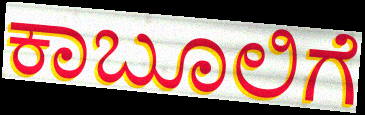
ಕಾಬೂಲಿಗೆ